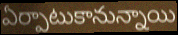
ఏర్పాటుకానున్నాయి